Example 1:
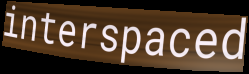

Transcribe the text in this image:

interspaced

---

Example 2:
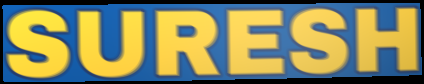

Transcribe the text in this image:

SURESH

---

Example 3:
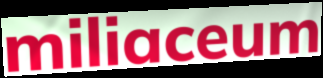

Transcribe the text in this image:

miliaceum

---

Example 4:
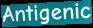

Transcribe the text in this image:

Antigenic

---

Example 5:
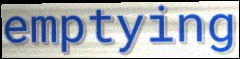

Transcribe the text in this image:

emptying